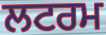
ਲਟਰਮ